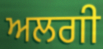
ਅਲਗੀ